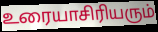
உரையாசிரியரும்